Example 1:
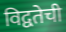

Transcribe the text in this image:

विद्वतेची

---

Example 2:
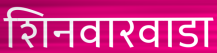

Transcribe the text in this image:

शिनवारवाडा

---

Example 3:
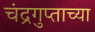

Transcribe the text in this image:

चंद्रगुप्ताच्या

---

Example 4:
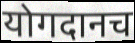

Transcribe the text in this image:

योगदानच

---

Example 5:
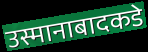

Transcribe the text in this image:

उस्मानाबादकडे